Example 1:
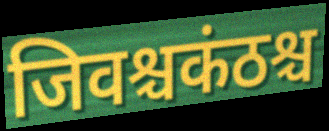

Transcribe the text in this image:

जिवश्चकंठश्च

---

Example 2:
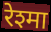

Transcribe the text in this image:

रेश्मा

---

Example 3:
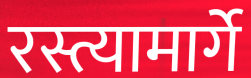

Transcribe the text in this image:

रस्त्यामार्गे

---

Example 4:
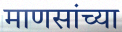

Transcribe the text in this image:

माणसांच्या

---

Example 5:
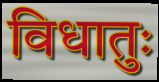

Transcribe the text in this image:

विधातुः